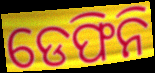
ଡେଫିନି